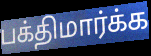
பக்திமார்க்க